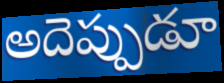
అదెప్పుడూ